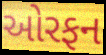
ઓરફન